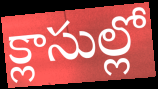
క్లాసుల్లో